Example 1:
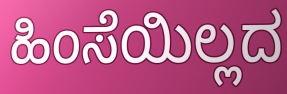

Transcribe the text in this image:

ಹಿಂಸೆಯಿಲ್ಲದ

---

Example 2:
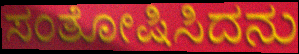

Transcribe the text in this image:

ಸಂತೋಷಿಸಿದನು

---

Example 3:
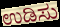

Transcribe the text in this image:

ಉಡಿಸು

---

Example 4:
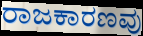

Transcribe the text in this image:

ರಾಜಕಾರಣವು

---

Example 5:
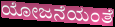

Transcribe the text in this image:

ಯೋಜನೆಯಂತೆ